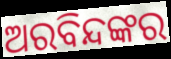
ଅରବିନ୍ଦଙ୍କର